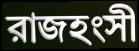
রাজহংসী